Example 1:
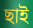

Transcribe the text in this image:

ছাই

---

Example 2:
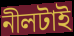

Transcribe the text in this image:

নীলটাই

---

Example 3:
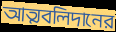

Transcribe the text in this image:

আত্মবলিদানের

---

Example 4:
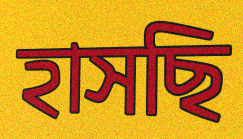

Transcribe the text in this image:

হাসছি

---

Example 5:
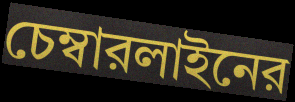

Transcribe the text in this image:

চেম্বারলাইনের